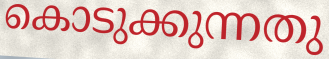
കൊടുക്കുന്നതു